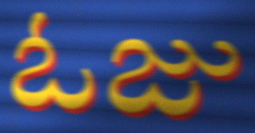
ఓజు